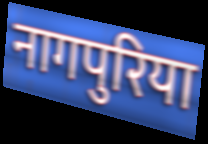
नागपुरिया